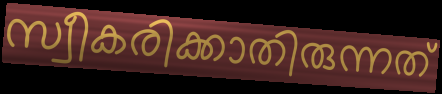
സ്വീകരിക്കാതിരുന്നത്